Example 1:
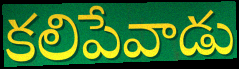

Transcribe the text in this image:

కలిపేవాడు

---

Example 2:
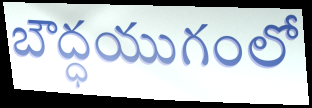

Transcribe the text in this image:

బౌద్ధయుగంలో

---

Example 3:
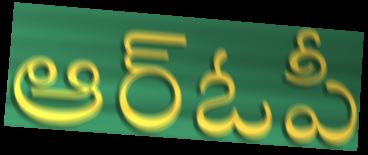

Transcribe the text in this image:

ఆర్ఓపీ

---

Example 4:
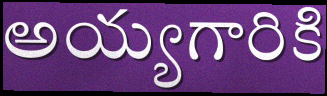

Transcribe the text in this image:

అయ్యగారికి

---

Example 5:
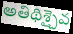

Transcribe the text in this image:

అతిథిశ్చైవ